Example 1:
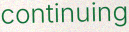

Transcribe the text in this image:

continuing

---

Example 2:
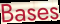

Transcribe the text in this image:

Bases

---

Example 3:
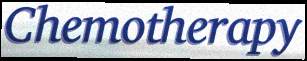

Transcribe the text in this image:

Chemotherapy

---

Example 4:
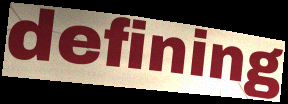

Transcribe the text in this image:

defining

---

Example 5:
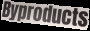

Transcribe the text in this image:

Byproducts